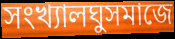
সংখ্যালঘুসমাজে